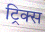
ट्रिक्‍स